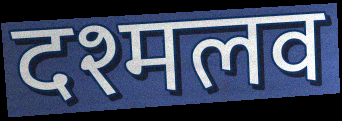
दश्मलव